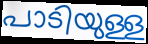
പാടിയുള്ള